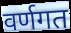
वर्णगत